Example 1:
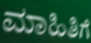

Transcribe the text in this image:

ಮಾಹಿತಿಗೆ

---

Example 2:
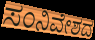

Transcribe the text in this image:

ಸಂನಿವೇಶದ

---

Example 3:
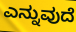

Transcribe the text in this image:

ಎನ್ನುವುದೆ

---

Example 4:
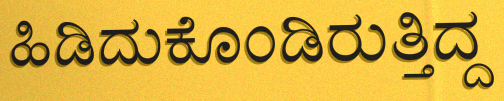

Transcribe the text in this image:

ಹಿಡಿದುಕೊಂಡಿರುತ್ತಿದ್ದ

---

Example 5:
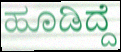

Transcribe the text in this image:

ಹೂಡಿದ್ದೆ